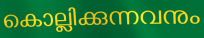
കൊല്ലിക്കുന്നവനും